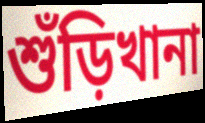
শুঁড়িখানা